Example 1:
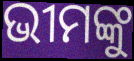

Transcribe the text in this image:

ଭୀମଙ୍କୁ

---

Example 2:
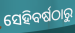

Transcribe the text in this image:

ସେହିବର୍ଷଠାରୁ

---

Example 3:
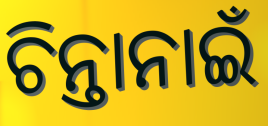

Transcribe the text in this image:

ଚିନ୍ତାନାଇଁ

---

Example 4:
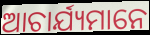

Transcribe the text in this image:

ଆଚାର୍ଯ୍ୟମାନେ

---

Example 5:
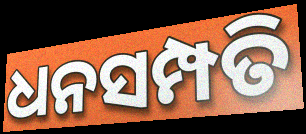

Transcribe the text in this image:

ଧନସମ୍ପତି